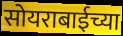
सोयराबाईच्या